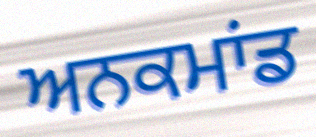
ਅਨਕਮਾਂਡ